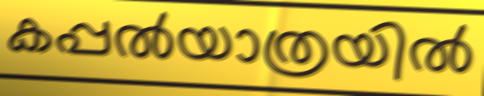
കപ്പൽയാത്രയിൽ